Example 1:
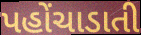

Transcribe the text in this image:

પહોંચાડાતી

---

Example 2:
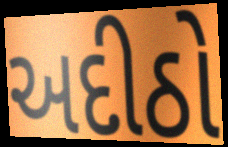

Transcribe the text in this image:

અદીઠો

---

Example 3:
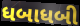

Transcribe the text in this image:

ધબાધબી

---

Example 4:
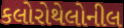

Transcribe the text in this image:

કલોરોથેલોનીલ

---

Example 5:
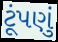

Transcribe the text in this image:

ટૂંપણું